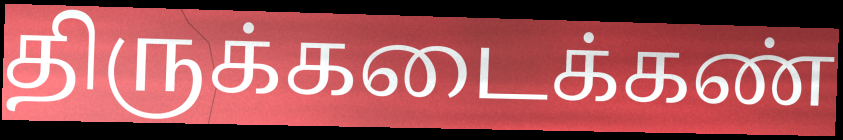
திருக்கடைக்கண்